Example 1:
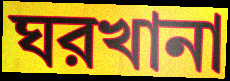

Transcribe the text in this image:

ঘরখানা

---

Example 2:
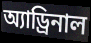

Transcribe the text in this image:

অ্যাড্রিনাল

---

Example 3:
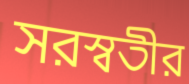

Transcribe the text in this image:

সরস্বতীর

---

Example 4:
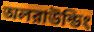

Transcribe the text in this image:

অলরাউন্ডিং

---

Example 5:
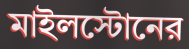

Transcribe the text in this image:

মাইলস্টোনের